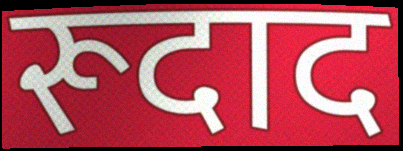
रूदाद